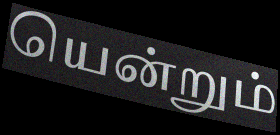
யென்றும்